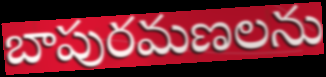
బాపురమణలను